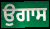
ਉਗਾਸ